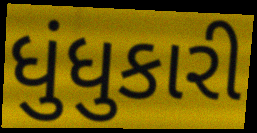
ધુંધુકારી